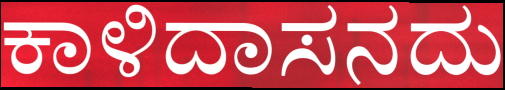
ಕಾಳಿದಾಸನದು